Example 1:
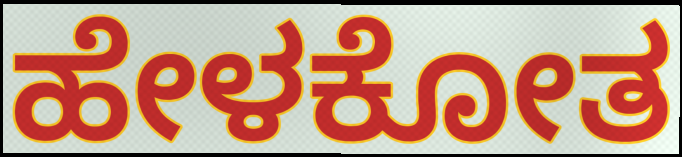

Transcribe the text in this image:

ಹೇಳಕೋತ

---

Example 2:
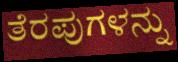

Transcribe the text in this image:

ತೆರಪುಗಳನ್ನು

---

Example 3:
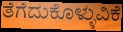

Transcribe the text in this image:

ತೆಗೆದುಕೊಳ್ಳುವಿಕೆ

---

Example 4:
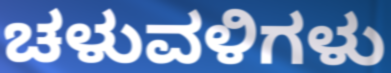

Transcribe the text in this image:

ಚಳುವಳಿಗಳು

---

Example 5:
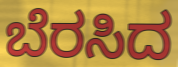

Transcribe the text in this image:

ಬೆರಸಿದ